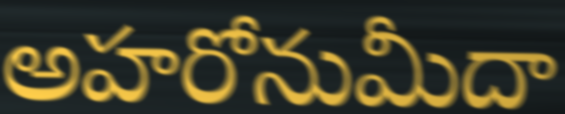
అహరోనుమీదా